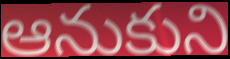
ఆనుకుని